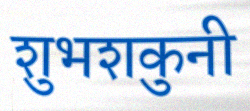
शुभशकुनी